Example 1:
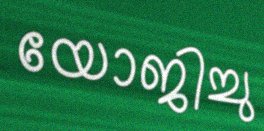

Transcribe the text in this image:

യോജിച്ചു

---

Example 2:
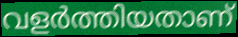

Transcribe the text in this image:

വളർത്തിയതാണ്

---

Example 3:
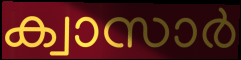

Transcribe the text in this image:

ക്വാസാർ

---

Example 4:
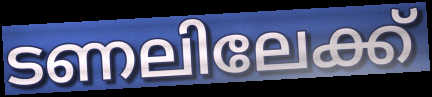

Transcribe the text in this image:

ടണലിലേക്ക്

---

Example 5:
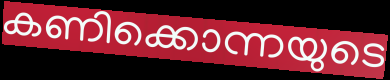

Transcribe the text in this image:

കണിക്കൊന്നയുടെ